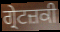
ਗ੍ਰੇਟਜ਼ਕੀ